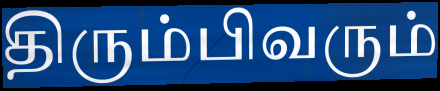
திரும்பிவரும்